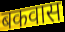
बकवास